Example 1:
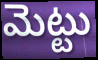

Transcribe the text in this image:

మెట్టు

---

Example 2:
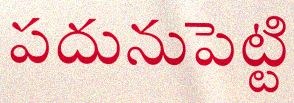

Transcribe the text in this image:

పదునుపెట్టి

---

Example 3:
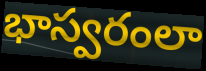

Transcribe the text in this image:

భాస్వరంలా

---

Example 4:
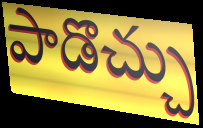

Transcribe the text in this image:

పాడొచ్చు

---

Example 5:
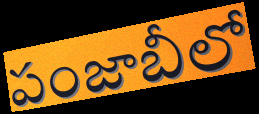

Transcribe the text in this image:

పంజాబీలో